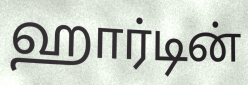
ஹார்டின்